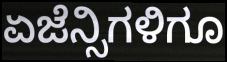
ಏಜೆನ್ಸಿಗಳಿಗೂ